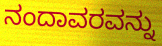
ನಂದಾವರವನ್ನು